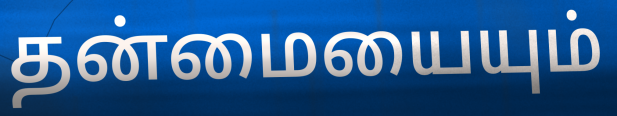
தன்மையையும்